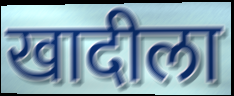
खादीला